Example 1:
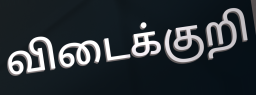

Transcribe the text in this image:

விடைக்குறி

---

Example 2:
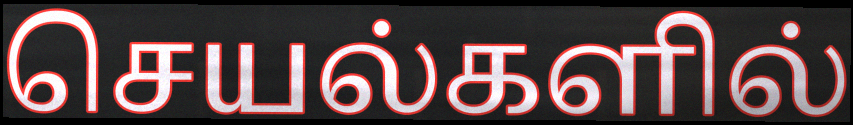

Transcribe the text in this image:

செயல்களில்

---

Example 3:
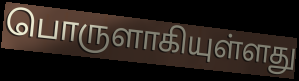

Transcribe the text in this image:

பொருளாகியுள்ளது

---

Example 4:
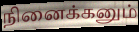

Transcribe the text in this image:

நினைக்கனும்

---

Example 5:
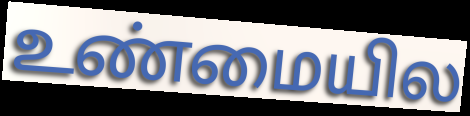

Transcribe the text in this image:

உண்மையில